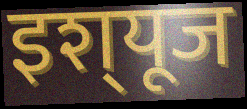
इश्यूज